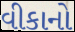
વીકાનો